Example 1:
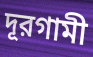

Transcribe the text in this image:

দূরগামী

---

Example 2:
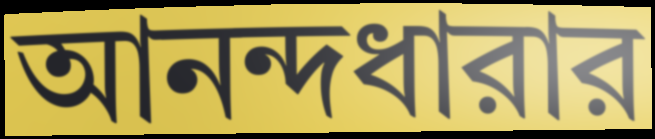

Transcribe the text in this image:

আনন্দধারার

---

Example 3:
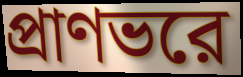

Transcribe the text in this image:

প্রাণভরে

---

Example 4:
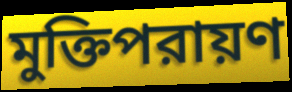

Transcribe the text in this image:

মুক্তিপরায়ণ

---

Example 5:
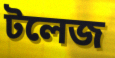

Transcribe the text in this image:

টলেজ